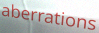
aberrations